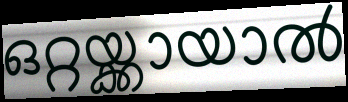
ഒറ്റയ്ക്കായാൽ